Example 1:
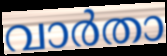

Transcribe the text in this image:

വാർതാ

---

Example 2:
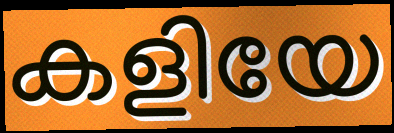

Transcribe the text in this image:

കളിയേ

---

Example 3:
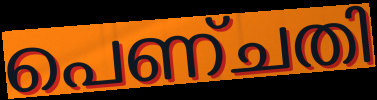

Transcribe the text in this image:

പെണ്ചതി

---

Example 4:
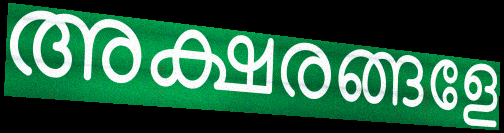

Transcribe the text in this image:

അക്ഷരങ്ങളേ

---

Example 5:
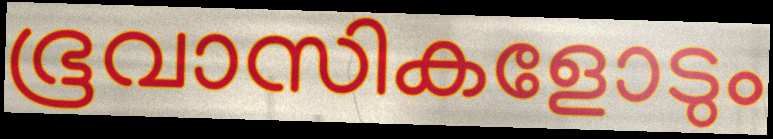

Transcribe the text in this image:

ഭൂവാസികളോടും